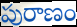
పురాణం